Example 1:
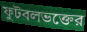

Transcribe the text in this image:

ফুটবলভক্তের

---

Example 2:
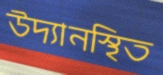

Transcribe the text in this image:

উদ্যানস্থিত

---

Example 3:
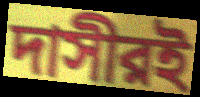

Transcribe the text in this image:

দাসীরই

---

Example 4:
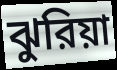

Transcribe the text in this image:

ঝুরিয়া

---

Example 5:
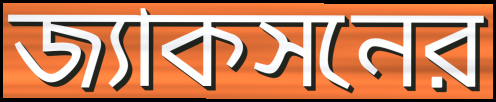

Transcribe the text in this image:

জ্যাকসনের